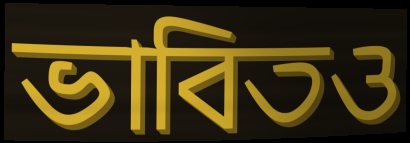
ভাবিতও